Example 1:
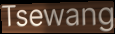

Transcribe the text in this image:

Tsewang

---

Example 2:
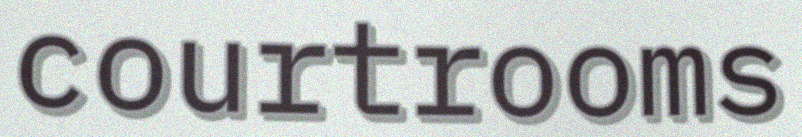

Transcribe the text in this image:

courtrooms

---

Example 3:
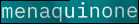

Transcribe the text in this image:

menaquinone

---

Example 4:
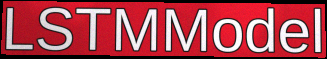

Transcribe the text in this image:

LSTMModel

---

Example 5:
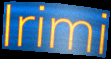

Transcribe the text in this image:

Irimi